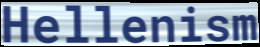
Hellenism